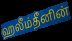
ஹலீம்தீனின்